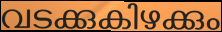
വടക്കുകിഴക്കും